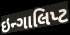
ઇન્ગાલિપ્ટ